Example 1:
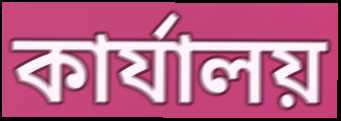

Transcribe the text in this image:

কার্যালয়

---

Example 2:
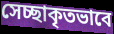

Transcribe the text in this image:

সেচ্ছাকৃতভাবে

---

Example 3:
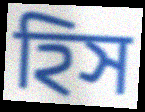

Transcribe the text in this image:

হিস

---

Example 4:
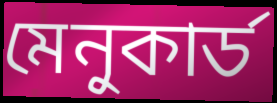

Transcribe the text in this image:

মেনুকার্ড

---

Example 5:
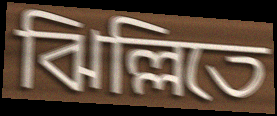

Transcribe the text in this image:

ঝিল্লিতে